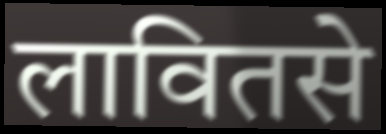
लावितसे